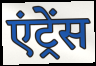
एंट्रेंस